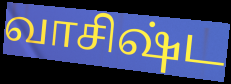
வாசிஷ்ட